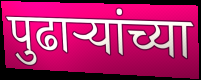
पुढाऱ्यांच्या